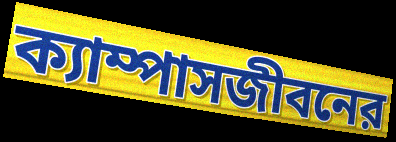
ক্যাম্পাসজীবনের